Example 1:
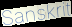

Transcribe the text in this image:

Sanskrit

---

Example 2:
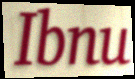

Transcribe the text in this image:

Ibnu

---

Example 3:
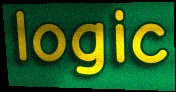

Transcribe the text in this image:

logic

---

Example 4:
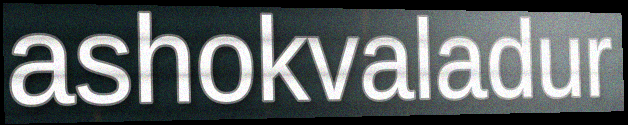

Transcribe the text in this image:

ashokvaladur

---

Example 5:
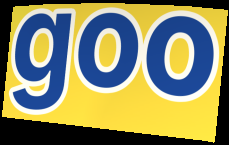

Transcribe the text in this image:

goo